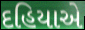
દહિયાએ